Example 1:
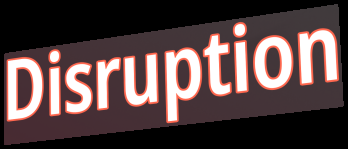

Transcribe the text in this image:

Disruption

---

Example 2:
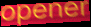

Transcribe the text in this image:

opener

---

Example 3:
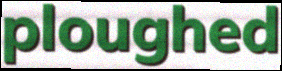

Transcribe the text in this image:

ploughed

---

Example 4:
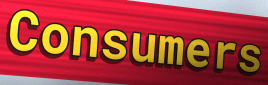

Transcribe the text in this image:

Consumers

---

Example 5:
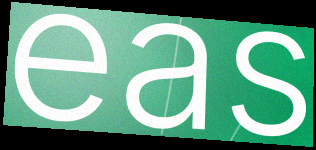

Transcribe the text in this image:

eas